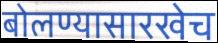
बोलण्यासारखेच